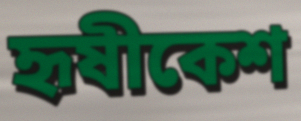
হৃষীকেশ